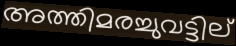
അത്തിമരച്ചുവട്ടില്